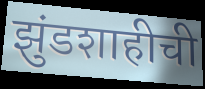
झुंडशाहीची